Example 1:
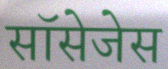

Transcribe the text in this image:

सॉसेजेस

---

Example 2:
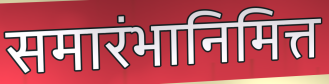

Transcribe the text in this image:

समारंभानिमित्त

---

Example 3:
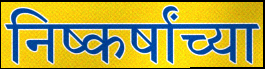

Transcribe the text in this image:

निष्कर्षांच्या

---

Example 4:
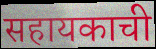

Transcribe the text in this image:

सहायकाची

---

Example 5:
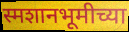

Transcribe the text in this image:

स्मशानभूमीच्या